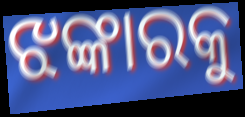
ଝଙ୍କାରକୁ